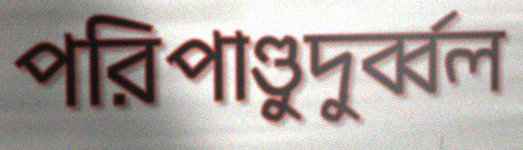
পরিপাণ্ডুদুর্ব্বল